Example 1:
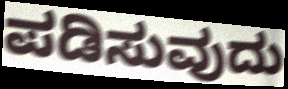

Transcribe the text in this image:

ಪಡಿಸುವುದು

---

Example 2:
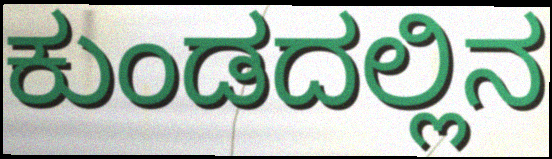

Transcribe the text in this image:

ಕುಂಡದಲ್ಲಿನ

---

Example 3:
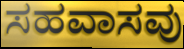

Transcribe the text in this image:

ಸಹವಾಸವು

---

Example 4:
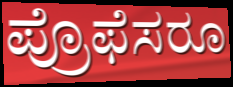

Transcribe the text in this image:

ಪ್ರೊಫೆಸರೂ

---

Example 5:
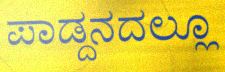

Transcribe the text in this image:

ಪಾಡ್ದನದಲ್ಲೂ